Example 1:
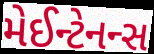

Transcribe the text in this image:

મેઈન્ટેનન્સ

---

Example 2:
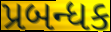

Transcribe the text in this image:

પ્રબન્ધક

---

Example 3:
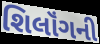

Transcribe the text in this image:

શિલૉંગની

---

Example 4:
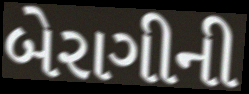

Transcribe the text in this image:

બેરાગીની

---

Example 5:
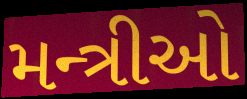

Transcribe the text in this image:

મન્ત્રીઓ